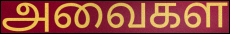
அவைகள